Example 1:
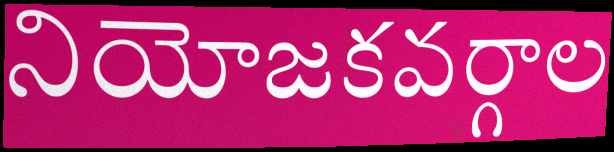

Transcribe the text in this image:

నియోజకవర్గాల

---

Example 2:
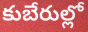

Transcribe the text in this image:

కుబేరుల్లో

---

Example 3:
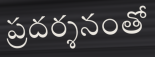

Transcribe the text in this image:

ప్రదర్శనంతో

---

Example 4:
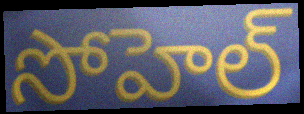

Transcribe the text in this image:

సోహెల్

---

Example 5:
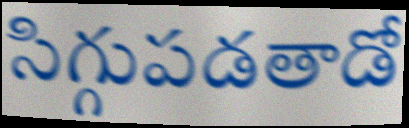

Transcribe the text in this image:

సిగ్గుపడతాడో